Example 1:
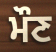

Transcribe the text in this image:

ਮੌਣ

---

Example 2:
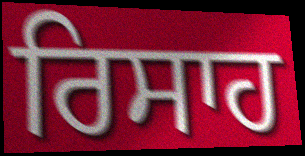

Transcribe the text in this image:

ਰਿਸਾਹ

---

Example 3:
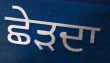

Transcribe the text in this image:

ਛੇੜਦਾ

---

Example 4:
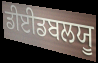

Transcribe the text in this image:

ਡੀਈਡਬਲਯੂ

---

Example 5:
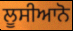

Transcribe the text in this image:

ਲੂਸੀਆਨੋ